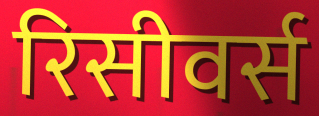
रिसीवर्स